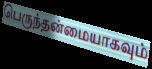
பெருந்தன்மையாகவும்